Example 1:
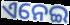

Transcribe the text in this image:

ଏନେଇ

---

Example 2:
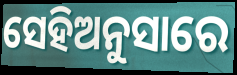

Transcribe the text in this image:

ସେହିଅନୁସାରେ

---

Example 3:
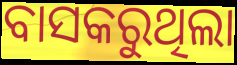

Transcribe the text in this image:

ବାସକରୁଥିଲା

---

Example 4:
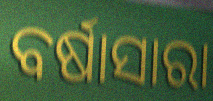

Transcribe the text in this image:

ବର୍ଷାସାରା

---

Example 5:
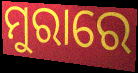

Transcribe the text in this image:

ମୁରାରେ